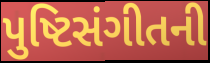
પુષ્ટિસંગીતની